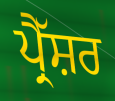
ਪ੍ਰੈੱਸ਼ਰ